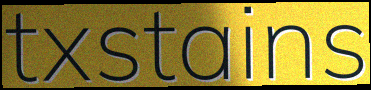
txstains